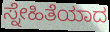
ಸ್ನೇಹಿತೆಯಾದ